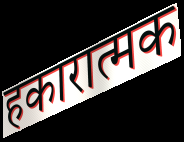
हकारात्मक